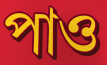
পাও